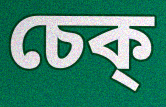
চেক্